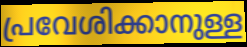
പ്രവേശിക്കാനുള്ള